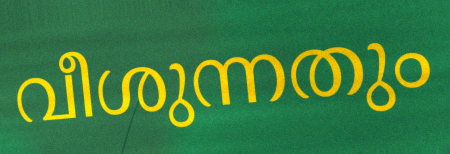
വീശുന്നതും